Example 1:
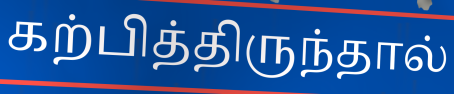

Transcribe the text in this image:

கற்பித்திருந்தால்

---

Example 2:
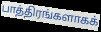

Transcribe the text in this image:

பாத்திரங்களாகக்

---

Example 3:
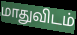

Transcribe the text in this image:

மாதுவிடம்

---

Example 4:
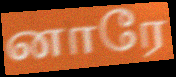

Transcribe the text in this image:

னாரே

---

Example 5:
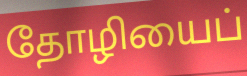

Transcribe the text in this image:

தோழியைப்